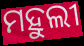
ମହୁଲୀ